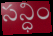
సన్ధిం